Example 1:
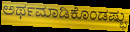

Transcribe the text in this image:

ಅರ್ಥಮಾಡಿಕೊಂಡಷ್ಟು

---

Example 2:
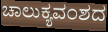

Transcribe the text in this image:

ಚಾಲುಕ್ಯವಂಶದ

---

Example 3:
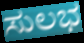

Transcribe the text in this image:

ಸುಲಭ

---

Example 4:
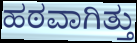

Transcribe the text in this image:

ಹಠವಾಗಿತ್ತು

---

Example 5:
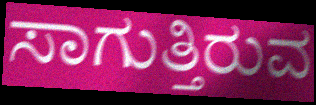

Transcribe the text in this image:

ಸಾಗುತ್ತಿರುವ